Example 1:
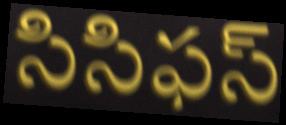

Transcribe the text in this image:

సిసిఫస్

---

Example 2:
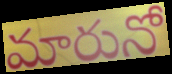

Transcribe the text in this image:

మారునో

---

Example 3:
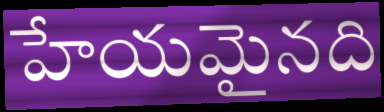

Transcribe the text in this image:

హేయమైనది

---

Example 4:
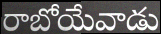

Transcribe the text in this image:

రాబోయేవాడు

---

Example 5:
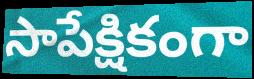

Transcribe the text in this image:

సాపేక్షికంగా